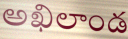
అఖిలాండ